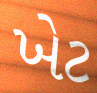
ખેટ